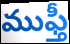
ముఫ్తీ